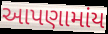
આપણામાંય